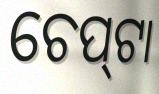
ଚେପ୍‍ଟା